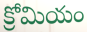
క్రోమియం